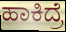
ಹಾಕಿದ್ರೆ